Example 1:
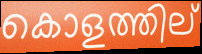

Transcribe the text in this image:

കൊളത്തില്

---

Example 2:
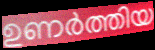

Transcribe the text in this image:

ഉണർത്തിയ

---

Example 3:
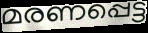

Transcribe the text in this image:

മരണപ്പെട്ട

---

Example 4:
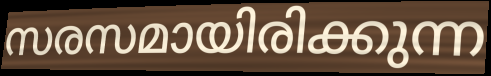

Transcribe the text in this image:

സരസമായിരിക്കുന്ന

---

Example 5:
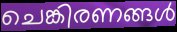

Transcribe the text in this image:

ചെങ്കിരണങ്ങൾ